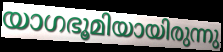
യാഗഭൂമിയായിരുന്നു